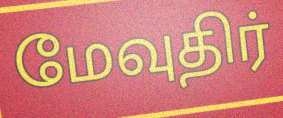
மேவுதிர்